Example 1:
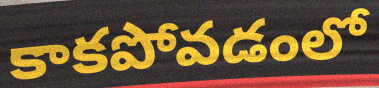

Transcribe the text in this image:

కాకపోవడంలో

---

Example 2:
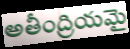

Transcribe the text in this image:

అతీంద్రియమై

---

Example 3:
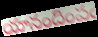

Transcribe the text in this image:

యానందింపఁ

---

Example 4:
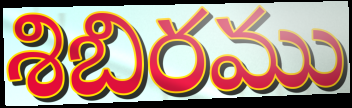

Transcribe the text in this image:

శిబిరము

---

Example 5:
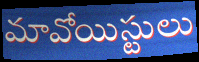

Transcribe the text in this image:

మావోయిస్టులు